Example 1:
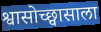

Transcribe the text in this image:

श्वासोच्छ्वासाला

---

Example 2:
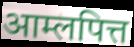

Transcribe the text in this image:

आम्लपित्त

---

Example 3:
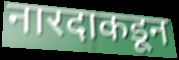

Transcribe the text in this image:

नारदाकडून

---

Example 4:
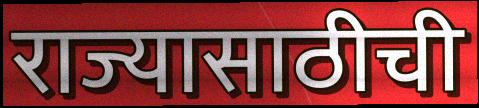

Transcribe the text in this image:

राज्यासाठीची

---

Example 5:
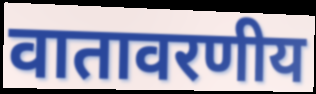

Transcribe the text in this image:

वातावरणीय